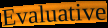
Evaluative